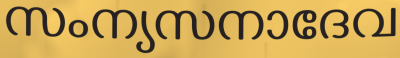
സംന്യസനാദേവ